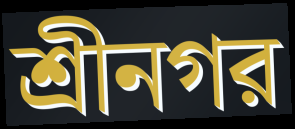
শ্রীনগর